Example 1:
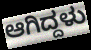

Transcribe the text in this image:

ಆಗಿದ್ದಳು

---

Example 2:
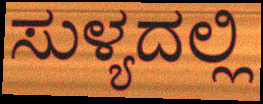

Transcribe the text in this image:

ಸುಳ್ಯದಲ್ಲಿ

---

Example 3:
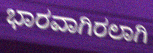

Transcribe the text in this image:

ಭಾರವಾಗಿರಲಾಗಿ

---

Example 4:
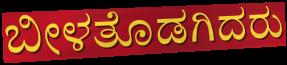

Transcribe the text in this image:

ಬೀಳತೊಡಗಿದರು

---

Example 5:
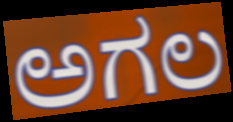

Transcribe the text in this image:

ಅಗಲ